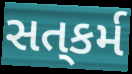
સત્‌કર્મ